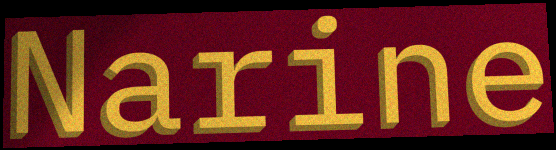
Narine